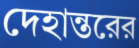
দেহান্তরের